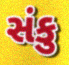
સંકુ